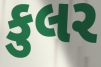
કુલર